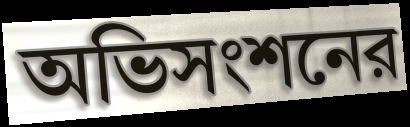
অভিসংশনের